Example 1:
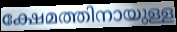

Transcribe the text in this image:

ക്ഷേമത്തിനായുള്ള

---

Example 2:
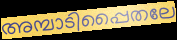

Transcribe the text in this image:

അമ്പാടിപ്പൈതലേ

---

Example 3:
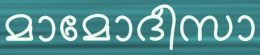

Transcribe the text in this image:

മാമോദീസാ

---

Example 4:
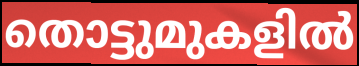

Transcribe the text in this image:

തൊട്ടുമുകളിൽ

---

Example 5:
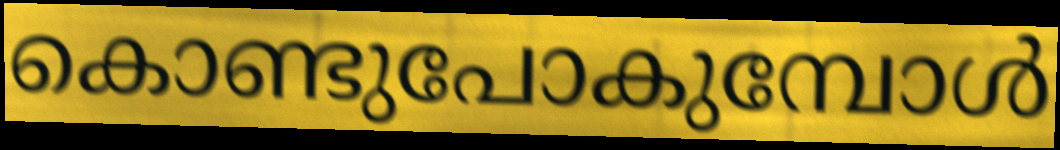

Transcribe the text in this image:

കൊണ്ടുപോകുമ്പോൾ